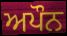
ਅਪੌਨ